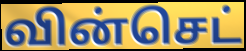
வின்செட்